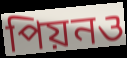
পিয়নও